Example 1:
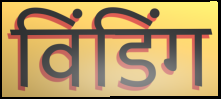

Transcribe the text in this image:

विंडिंग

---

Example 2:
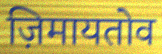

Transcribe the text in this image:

ज़िमायतोव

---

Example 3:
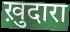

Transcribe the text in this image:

ख़ुदारा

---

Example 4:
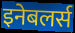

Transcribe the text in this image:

इनेबलर्स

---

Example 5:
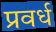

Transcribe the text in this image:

प्रवर्ध